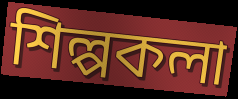
শিল্পকলা